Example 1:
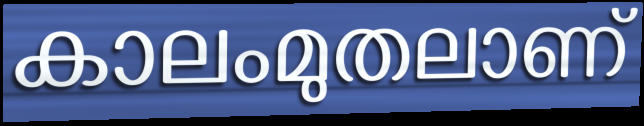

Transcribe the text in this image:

കാലംമുതലാണ്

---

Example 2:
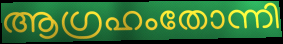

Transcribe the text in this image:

ആഗ്രഹംതോന്നി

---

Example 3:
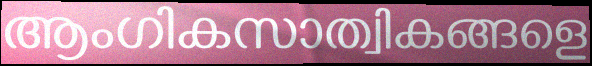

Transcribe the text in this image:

ആംഗികസാത്വികങ്ങളെ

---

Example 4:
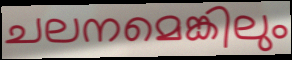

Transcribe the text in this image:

ചലനമെങ്കിലും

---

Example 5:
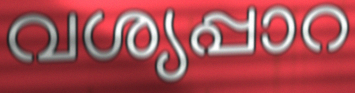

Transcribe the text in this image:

വശ്യപ്പാറ